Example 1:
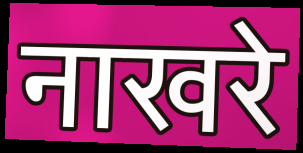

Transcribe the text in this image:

नाखरे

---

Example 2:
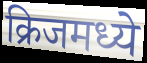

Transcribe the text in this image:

क्रिजमध्ये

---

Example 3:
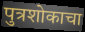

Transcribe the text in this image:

पुत्रशोकाचा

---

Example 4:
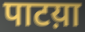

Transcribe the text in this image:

पाटय़ा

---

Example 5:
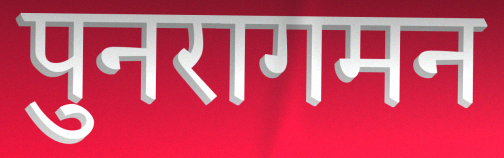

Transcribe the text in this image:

पुनरागमन